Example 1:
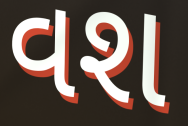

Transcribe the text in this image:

વશ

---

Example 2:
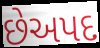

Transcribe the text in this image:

છેઅપદ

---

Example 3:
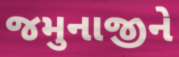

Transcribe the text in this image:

જમુનાજીને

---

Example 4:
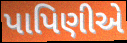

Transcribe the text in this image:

પાપિણીએ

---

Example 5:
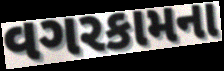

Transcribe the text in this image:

વગરકામના